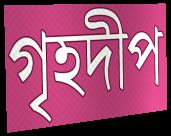
গৃহদীপ